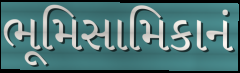
ભૂમિસામિકાનં